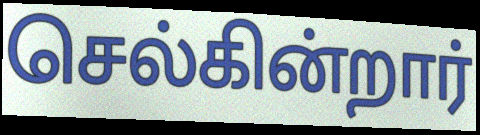
செல்கின்றார்